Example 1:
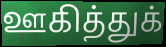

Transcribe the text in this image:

ஊகித்துக்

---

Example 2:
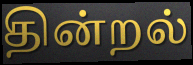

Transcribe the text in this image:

தின்றல்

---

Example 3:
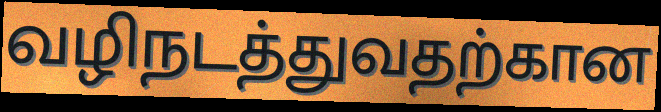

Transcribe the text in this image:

வழிநடத்துவதற்கான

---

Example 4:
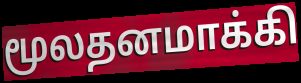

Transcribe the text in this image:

மூலதனமாக்கி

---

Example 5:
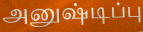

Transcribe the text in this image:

அனுஷ்டிப்பு